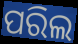
ପରିଲ